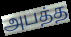
அபத்த